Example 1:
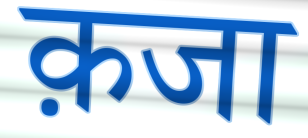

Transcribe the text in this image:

क़जा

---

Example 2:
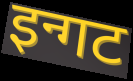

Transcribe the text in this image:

इन्गट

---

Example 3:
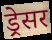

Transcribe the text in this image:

ड्रेसर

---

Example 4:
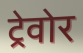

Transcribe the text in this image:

ट्रेवोर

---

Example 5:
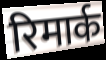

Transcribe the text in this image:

रिमार्क